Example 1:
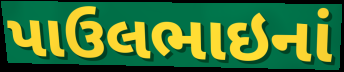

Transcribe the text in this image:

પાઉલભાઇનાં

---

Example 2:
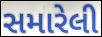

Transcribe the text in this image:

સમારેલી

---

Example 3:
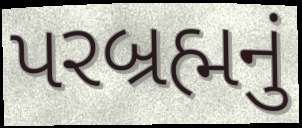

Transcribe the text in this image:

પરબ્રહ્મનું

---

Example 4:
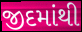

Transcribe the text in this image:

જીદમાંથી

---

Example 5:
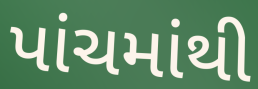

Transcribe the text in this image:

પાંચમાંથી